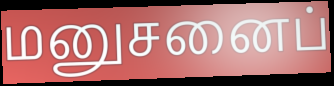
மனுசனைப்